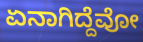
ಏನಾಗಿದ್ದೆವೋ